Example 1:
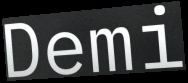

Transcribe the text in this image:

Demi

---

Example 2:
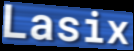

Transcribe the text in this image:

Lasix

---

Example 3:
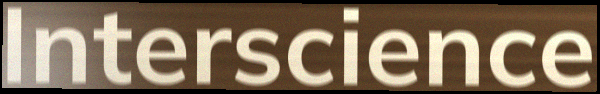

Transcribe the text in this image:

Interscience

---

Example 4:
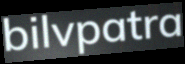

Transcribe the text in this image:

bilvpatra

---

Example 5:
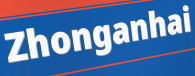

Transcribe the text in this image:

Zhonganhai